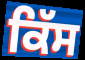
ਕਿੱਸ